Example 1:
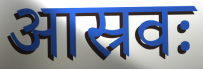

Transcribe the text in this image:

आस्रवः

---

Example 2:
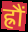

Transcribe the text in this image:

ह्रौं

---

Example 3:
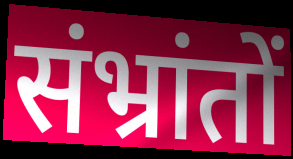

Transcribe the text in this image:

संभ्रांतों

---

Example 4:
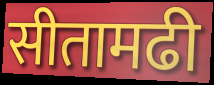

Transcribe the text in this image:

सीतामढी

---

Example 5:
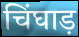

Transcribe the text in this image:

चिंघाड़